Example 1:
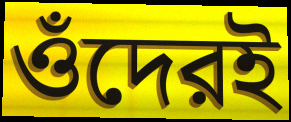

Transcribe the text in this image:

ওঁদেরই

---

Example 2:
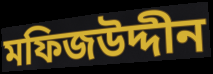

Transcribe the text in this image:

মফিজউদ্দীন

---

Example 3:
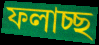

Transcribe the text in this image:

ফলাচ্ছ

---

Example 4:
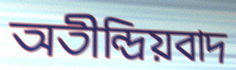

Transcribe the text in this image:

অতীন্দ্রিয়বাদ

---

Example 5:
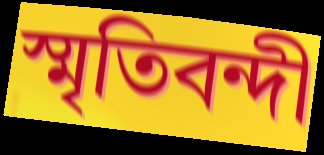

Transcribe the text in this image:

স্মৃতিবন্দী